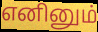
எனினும்